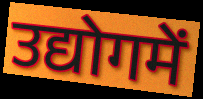
उद्योगमें